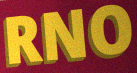
RNO